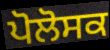
ਪੋਲੋਸਕ